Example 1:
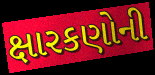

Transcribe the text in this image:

ક્ષારકણોની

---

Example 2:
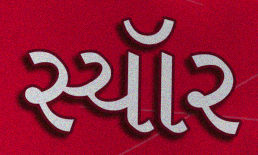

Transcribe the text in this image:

સ્યૉર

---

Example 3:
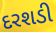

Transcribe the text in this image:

દરશડી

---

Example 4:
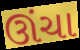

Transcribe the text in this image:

ઊંચા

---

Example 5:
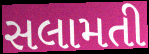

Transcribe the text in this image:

સલામતી